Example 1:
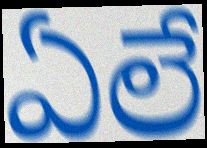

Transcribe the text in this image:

ఏలే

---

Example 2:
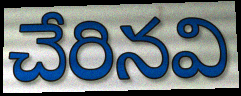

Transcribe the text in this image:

చేరినవి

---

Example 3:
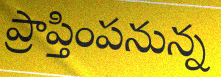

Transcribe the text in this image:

ప్రాప్తింపనున్న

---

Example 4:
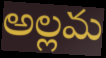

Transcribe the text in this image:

అల్లమ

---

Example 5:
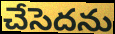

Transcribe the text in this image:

చేసెదను